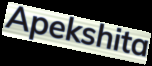
Apekshita